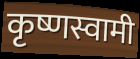
कृष्णस्वामी